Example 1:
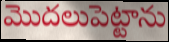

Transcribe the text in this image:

మొదలుపెట్టాను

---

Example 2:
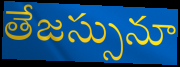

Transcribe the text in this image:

తేజస్సునూ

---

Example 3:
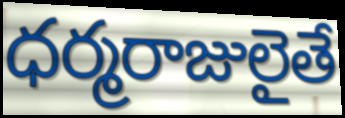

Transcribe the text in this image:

ధర్మరాజులైతే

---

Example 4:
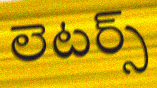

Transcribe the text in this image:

లెటర్స్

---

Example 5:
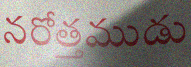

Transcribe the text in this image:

నరోత్తముడు